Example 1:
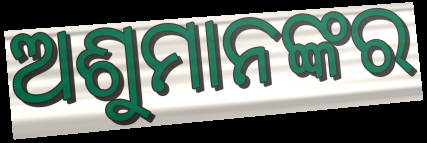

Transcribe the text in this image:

ଅଶୁମାନଙ୍କର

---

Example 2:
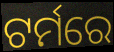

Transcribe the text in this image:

ଟର୍ମରେ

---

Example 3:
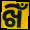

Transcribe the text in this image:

ଖିଁ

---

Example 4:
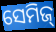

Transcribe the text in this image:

ସେମିଜ୍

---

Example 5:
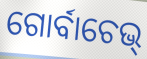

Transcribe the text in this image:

ଗୋର୍ବାଚେଭ୍